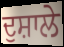
ਦੁਸ਼ਾਲੇ